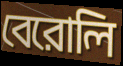
বেরোলি